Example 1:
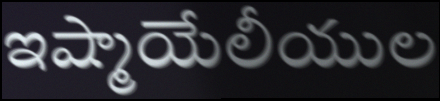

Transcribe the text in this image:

ఇష్మాయేలీయుల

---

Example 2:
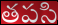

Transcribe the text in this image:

తపసి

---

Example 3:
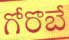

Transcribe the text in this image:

గోరొబే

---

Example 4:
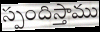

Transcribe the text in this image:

స్పందిస్తాము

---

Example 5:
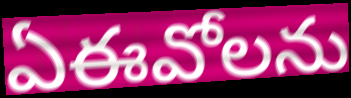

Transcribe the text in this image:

ఏఈవోలను